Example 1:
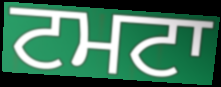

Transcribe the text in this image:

ਟਮਟਾ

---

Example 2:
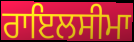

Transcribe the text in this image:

ਰਾਇਲਸੀਮਾ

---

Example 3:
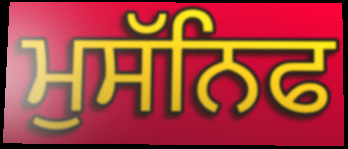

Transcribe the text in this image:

ਮੁਸੱਨਿਫ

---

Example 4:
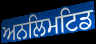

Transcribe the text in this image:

ਅਨਲਿਮਟਿਡ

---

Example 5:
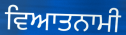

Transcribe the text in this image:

ਵਿਆਤਨਾਮੀ